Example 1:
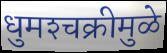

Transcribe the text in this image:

धुमश्चक्रीमुळे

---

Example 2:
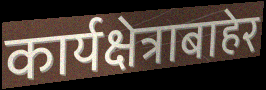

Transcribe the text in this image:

कार्यक्षेत्राबाहेर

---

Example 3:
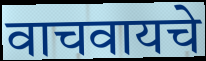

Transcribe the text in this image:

वाचवायचे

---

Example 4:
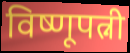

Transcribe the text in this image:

विष्णूपत्नी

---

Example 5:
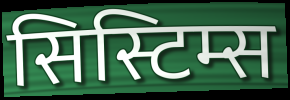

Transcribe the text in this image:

सिस्टिम्स